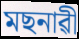
মছনাৱী